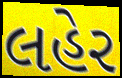
લહેર